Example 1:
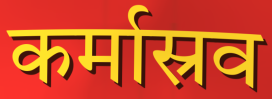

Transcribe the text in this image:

कर्मास्रव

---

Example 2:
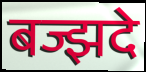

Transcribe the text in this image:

बज्झदे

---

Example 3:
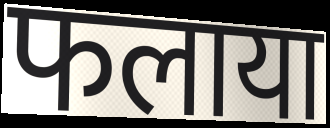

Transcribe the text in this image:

फलाया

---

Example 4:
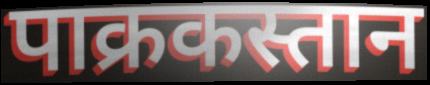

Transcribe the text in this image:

पाक्रकस्तान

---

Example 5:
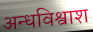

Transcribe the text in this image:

अन्धविश्वाश